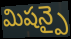
మిషన్పై